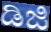
ಡಿಜಿ